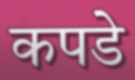
कपडे